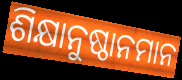
ଶିକ୍ଷାନୁଷ୍ଠାନମାନ